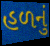
હળનું